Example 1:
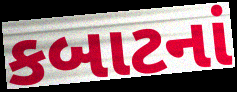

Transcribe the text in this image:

કબાટનાં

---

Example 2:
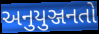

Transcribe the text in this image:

અનુયુઞ્જનતો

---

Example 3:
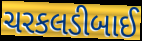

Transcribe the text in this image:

ચરકલડીબાઈ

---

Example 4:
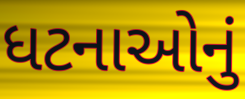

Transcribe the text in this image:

ધટનાઓનું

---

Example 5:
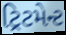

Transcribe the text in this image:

ટ્રિટમેન્ટ